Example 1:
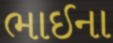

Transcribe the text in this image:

ભાઈના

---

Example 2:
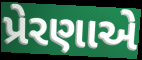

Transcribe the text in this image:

પ્રેરણાએ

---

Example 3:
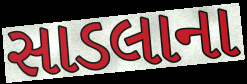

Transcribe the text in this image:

સાડલાના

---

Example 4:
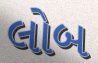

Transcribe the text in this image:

લોબ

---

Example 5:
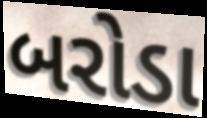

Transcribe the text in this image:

બરોડા